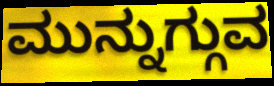
ಮುನ್ನುಗ್ಗುವ